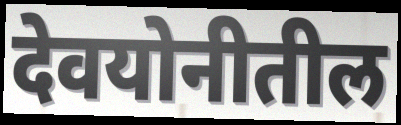
देवयोनीतील